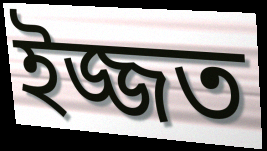
ইজ্জত